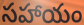
సహాయం